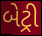
બેટ્રી